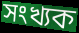
সংখ্যক